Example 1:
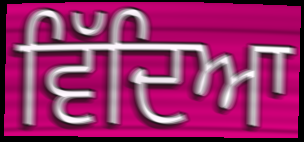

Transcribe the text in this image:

ਵਿੱਦਿਆ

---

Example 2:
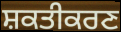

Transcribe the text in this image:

ਸ਼ਕਤੀਕਰਣ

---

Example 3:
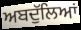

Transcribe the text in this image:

ਅਬਦੁੱਲਿਆਂ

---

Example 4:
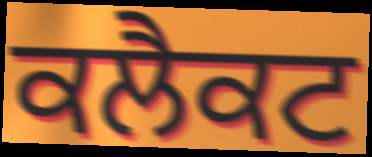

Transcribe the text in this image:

ਕਲੈਕਟ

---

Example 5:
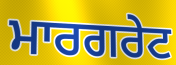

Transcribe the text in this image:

ਮਾਰਗਰੇਟ